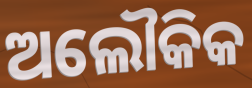
ଅଲୌକିକ